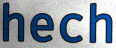
hech